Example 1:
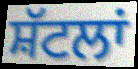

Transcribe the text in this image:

ਸ਼ੱਟਲਾਂ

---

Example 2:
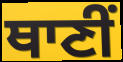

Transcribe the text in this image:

ਥਾਣੀਂ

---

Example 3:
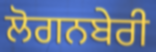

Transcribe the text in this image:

ਲੋਗਨਬੇਰੀ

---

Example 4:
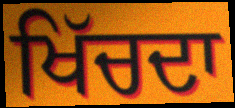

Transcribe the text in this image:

ਖਿੱਚਦਾ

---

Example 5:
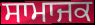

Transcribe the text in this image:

ਸਾਮਾਜਕ